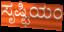
ಸೃಷ್ಟಿಯಂ